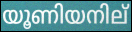
യൂണിയനില്